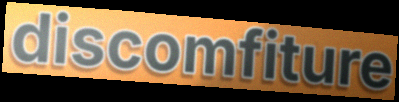
discomfiture